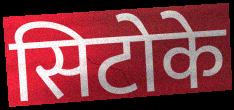
सिटोके